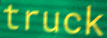
truck